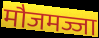
मौजमज्जा